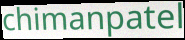
chimanpatel